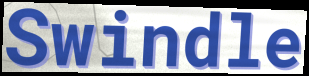
Swindle